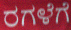
ರಗಳೆಗೆ